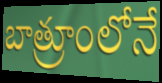
బాత్రూంలోనే